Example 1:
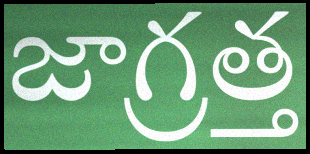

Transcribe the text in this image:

జాగ్రత్త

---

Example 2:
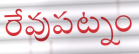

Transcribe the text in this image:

రేవుపట్నం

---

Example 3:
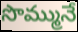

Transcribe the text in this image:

సొమ్మునే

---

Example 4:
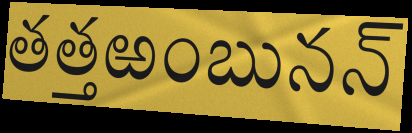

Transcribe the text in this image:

తత్తఱంబునన్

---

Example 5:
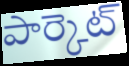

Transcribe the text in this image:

పార్కెట్